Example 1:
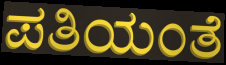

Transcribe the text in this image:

ಪತಿಯಂತೆ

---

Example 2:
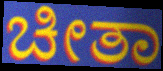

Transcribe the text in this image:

ಚೀತಾ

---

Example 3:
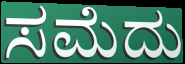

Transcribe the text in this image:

ಸಮೆದು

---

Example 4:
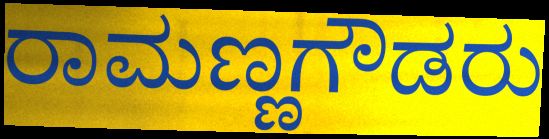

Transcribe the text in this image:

ರಾಮಣ್ಣಗೌಡರು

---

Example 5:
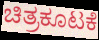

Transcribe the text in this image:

ಚಿತ್ರಕೂಟಕೆ